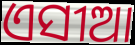
ଏସୀଆ